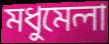
মধুমেলা